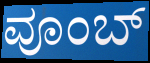
ವೂಂಬ್